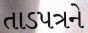
તાડપત્રને